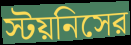
স্টয়নিসের